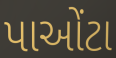
પાઓંટા